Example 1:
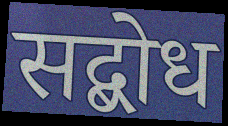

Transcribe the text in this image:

सद्बोध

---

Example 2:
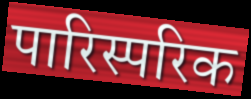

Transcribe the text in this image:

पारिस्परिक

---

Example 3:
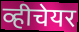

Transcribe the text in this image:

व्हीचेयर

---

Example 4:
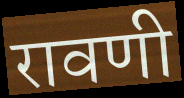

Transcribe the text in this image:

रावणी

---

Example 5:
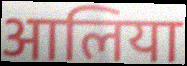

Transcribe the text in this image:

आलिया